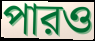
পারও